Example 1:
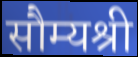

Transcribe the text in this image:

सौम्यश्री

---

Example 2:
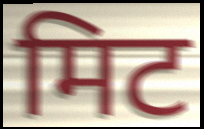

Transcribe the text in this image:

मिट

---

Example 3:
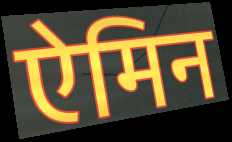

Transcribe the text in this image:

ऐमिन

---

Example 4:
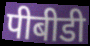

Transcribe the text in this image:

पीबीडी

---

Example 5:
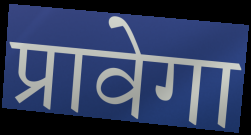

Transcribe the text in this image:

प्रावेगा